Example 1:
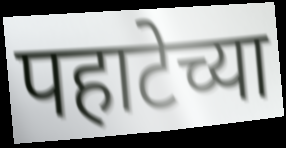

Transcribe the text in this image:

पहाटेच्या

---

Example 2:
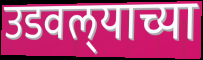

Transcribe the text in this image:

उडवल्याच्या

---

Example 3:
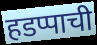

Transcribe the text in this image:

हडप्पाची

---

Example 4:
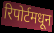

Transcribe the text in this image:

रिपोर्टमधून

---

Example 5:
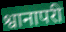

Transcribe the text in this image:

श्वानापरी